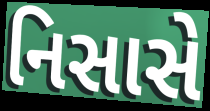
નિસાસે